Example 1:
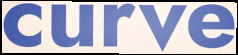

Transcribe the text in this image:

curve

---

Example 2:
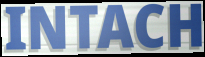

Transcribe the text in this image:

INTACH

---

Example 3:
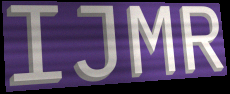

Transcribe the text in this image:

IJMR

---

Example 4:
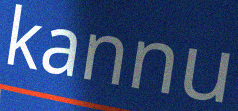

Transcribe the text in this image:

kannu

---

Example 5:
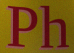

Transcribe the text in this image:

Ph